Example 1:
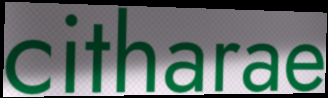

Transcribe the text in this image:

citharae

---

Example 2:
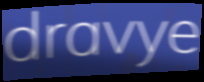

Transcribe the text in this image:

dravye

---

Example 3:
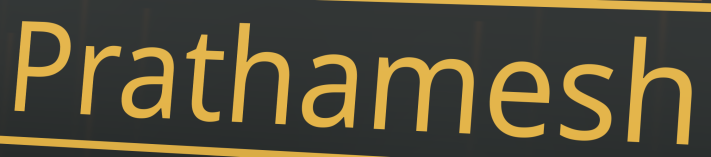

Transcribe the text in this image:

Prathamesh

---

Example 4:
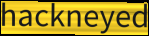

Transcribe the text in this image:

hackneyed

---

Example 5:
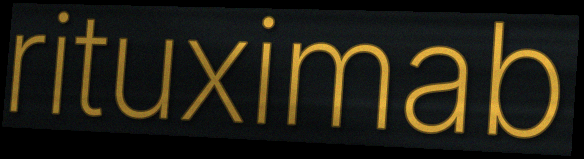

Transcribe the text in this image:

rituximab